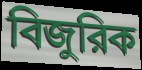
বিজুরিক